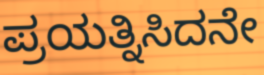
ಪ್ರಯತ್ನಿಸಿದನೇ